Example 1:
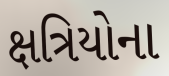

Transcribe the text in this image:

ક્ષત્રિયોના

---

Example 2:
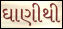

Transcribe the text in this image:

ઘાણીથી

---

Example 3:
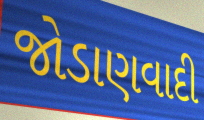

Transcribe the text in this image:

જોડાણવાદી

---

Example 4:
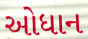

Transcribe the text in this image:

ઓધાન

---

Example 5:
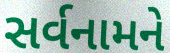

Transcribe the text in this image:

સર્વનામને